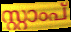
സ്റ്റാംപ്